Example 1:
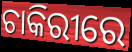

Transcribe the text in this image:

ଚାକିରୀରେ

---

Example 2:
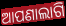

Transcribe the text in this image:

ଆପଣାଲାଗି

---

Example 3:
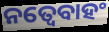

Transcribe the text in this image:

ନତ୍ୱେବାହଂ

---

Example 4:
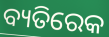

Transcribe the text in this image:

ବ୍ୟତିରେକ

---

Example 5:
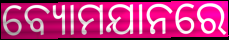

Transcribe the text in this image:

ବ୍ୟୋମଯାନରେ